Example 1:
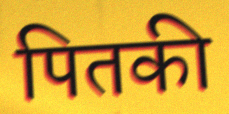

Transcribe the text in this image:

पितकी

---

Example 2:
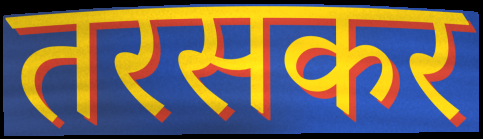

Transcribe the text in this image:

तरसकर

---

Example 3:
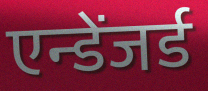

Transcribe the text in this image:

एन्डेंजर्ड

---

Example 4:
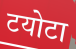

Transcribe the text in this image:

टयोटा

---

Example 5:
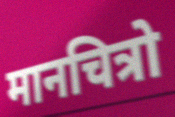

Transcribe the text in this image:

मानचित्रो